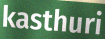
kasthuri